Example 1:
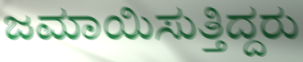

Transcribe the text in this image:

ಜಮಾಯಿಸುತ್ತಿದ್ದರು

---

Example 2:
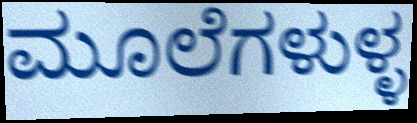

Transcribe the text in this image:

ಮೂಲೆಗಳುಳ್ಳ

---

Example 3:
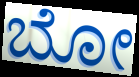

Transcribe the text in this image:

ಬೋ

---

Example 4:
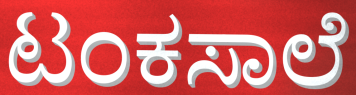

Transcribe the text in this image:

ಟಂಕಸಾಲೆ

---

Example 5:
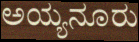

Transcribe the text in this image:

ಅಯ್ಯನೂರು